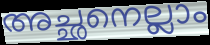
അച്ഛനെല്ലാം